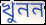
খুনন